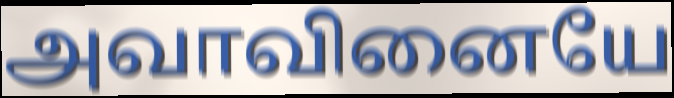
அவாவினையே